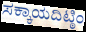
ಸಕ್ಕಾಯದಿಟ್ಠಿಂ